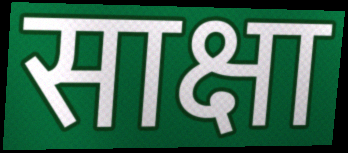
साक्षा